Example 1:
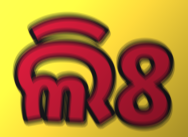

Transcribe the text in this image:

ଲିଃ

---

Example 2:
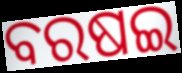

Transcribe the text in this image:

ବରଷଇ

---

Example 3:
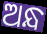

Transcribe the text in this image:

ଅନ୍ଧ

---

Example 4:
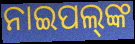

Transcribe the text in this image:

ନାଇପଲ୍‍ଙ୍କ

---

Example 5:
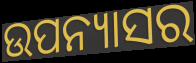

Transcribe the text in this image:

ଉପନ୍ୟାସର